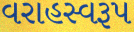
વરાહસ્વરૂપ